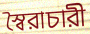
স্বৈরাচারী